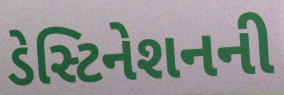
ડેસ્ટિનેશનની